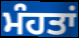
ਮੰਹਤਾਂ